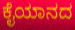
ಕೈಯಾನದ